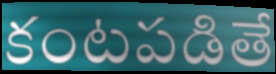
కంటపడితే